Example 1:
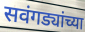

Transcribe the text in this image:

सवंगड्यांच्या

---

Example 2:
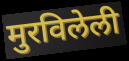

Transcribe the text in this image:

मुरविलेली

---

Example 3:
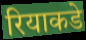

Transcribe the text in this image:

रियाकडे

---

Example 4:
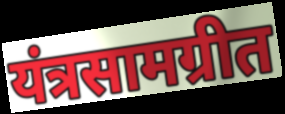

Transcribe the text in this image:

यंत्रसामग्रीत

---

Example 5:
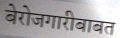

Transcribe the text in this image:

बेरोजगारीबाबत